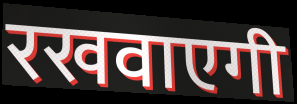
रखवाएगी